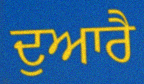
ਦੁਆਰੈ